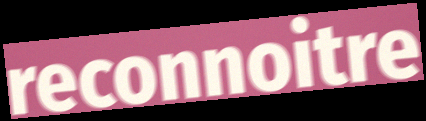
reconnoitre